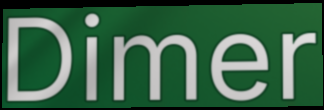
Dimer